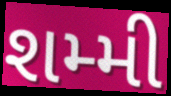
શમ્મી